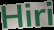
Hiri